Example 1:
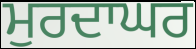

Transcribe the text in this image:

ਮੁਰਦਾਘਰ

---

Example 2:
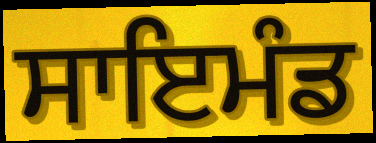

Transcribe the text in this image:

ਸਾਇਮੰਡ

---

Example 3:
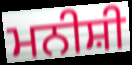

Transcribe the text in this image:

ਮਨੀਸ਼ੀ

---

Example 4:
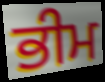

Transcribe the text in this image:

ਭੀਮ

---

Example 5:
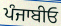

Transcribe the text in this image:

ਪੰਜਾਬੀਓ